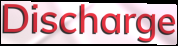
Discharge